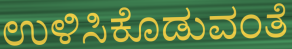
ಉಳಿಸಿಕೊಡುವಂತೆ